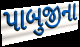
પાબુજીના